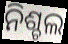
ନିଶ୍ଚଲ